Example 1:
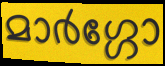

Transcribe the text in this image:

മാർഗ്ഗോ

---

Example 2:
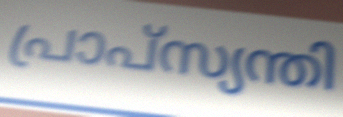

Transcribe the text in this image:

പ്രാപ്സ്യന്തി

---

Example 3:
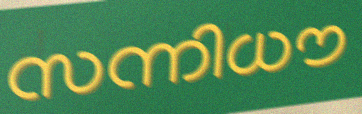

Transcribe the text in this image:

സന്നിധൗ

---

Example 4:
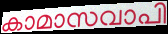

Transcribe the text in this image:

കാമാസവാപി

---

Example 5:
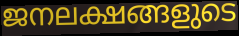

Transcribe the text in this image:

ജനലക്ഷങ്ങളുടെ